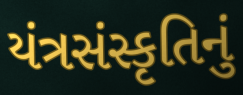
યંત્રસંસ્કૃતિનું